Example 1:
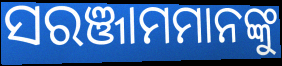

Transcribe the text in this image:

ସରଞ୍ଜାମମାନଙ୍କୁ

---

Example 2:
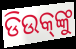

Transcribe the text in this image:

ଡିଉକ୍‌ଙ୍କୁ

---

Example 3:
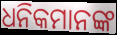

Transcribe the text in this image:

ଧନିକମାନଙ୍କ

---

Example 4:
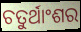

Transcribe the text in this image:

ଚତୁର୍ଥାଂଶର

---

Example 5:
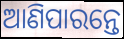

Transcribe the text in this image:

ଆଣିପାରନ୍ତେ